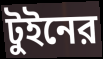
টুইনের